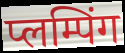
प्लम्पिंग